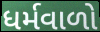
ધર્મવાળો